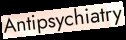
Antipsychiatry